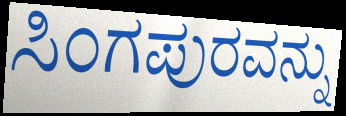
ಸಿಂಗಪುರವನ್ನು